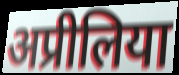
अप्रीलिया